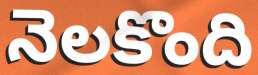
నెలకొంది